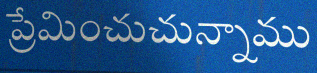
ప్రేమించుచున్నాము